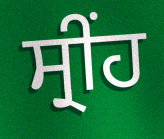
ਸ੍ਰੀਂਹ